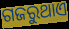
ଗଜରୁଥାଏ